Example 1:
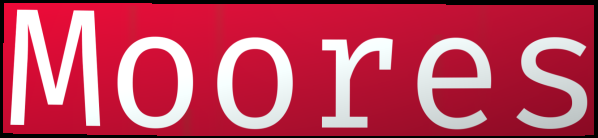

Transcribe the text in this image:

Moores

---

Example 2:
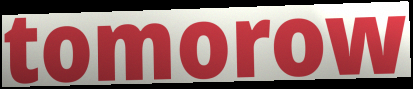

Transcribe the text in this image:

tomorow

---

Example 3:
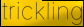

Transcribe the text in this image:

trickling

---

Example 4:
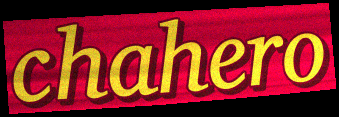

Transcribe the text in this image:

chahero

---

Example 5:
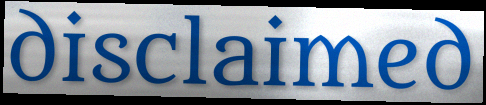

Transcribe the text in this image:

disclaimed